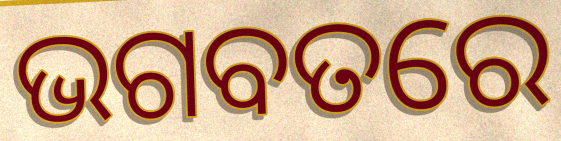
ଭଗବତରେ